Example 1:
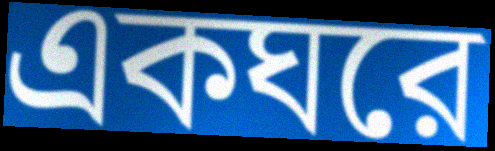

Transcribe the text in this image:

একঘরে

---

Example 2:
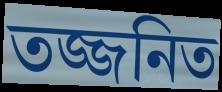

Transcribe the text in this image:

তজ্জনিত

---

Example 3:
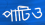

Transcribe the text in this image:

পাটিও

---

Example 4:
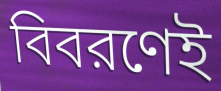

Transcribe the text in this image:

বিবরণেই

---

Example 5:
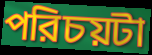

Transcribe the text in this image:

পরিচয়টা